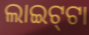
ଲାଇଟ୍‍ଟା